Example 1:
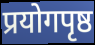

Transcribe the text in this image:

प्रयोगपृष्ठ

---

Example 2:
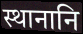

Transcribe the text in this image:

स्थानानि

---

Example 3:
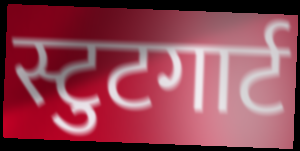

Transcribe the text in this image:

स्टुटगार्ट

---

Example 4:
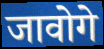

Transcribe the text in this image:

जावोगे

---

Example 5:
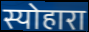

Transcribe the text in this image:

स्योहारा